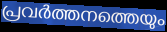
പ്രവർത്തനത്തെയും